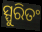
ସ୍ପୁରିତଂ